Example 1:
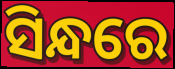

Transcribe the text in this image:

ସିନ୍ଧରେ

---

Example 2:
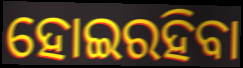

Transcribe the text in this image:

ହୋଇରହିବା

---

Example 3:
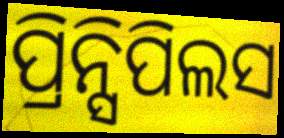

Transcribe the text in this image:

ପ୍ରିନ୍ସିପିଲସ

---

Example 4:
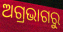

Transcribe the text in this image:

ଅଗ୍ରଭାଗରୁ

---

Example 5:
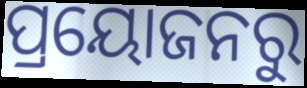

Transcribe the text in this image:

ପ୍ରୟୋଜନରୁ